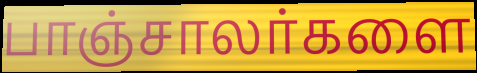
பாஞ்சாலர்களை